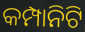
କମ୍ପାନିଟି